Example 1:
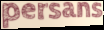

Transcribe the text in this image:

persans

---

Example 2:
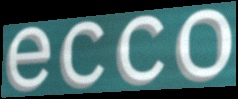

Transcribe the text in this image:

ecco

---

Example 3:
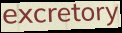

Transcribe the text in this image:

excretory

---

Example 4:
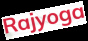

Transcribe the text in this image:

Rajyoga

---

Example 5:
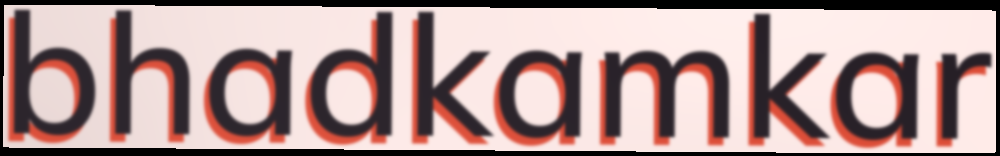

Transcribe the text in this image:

bhadkamkar